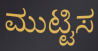
ಮುಟ್ಟಿಸ